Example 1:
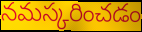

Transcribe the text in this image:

నమస్కరించడం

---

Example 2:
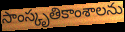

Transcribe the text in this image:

సాంస్కృతికాంశాలను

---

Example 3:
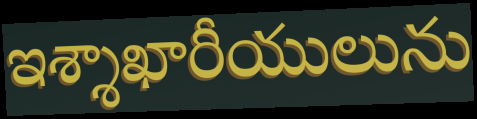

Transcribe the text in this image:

ఇశ్శాఖారీయులును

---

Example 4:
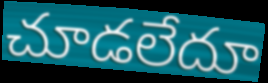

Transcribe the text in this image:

చూడలేదూ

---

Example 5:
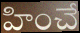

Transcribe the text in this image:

హించే